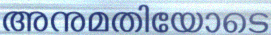
അനുമതിയോടെ